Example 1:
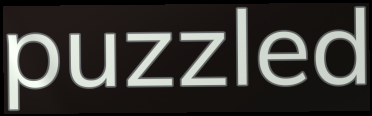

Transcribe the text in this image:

puzzled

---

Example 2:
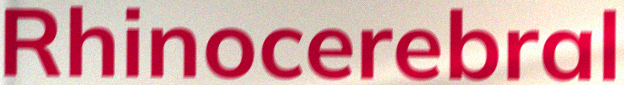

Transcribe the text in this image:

Rhinocerebral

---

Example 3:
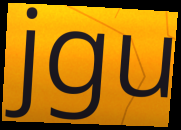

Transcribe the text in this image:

jgu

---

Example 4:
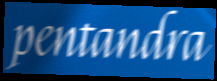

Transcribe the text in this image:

pentandra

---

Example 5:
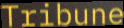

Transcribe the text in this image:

Tribune